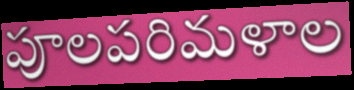
పూలపరిమళాల